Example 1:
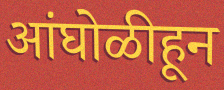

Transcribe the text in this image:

आंघोळीहून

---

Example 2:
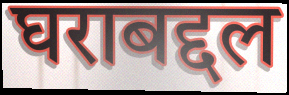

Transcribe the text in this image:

घराबद्दल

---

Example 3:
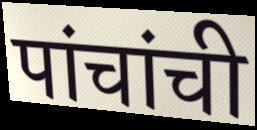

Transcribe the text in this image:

पांचांची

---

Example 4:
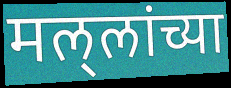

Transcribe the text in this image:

मल्लांच्या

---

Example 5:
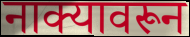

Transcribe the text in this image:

नाक्यावरून